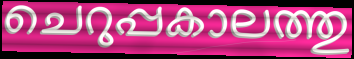
ചെറുപ്പകാലത്തു